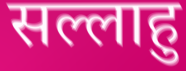
सल्लाहु